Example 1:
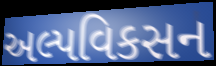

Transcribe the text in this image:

અલ્પવિકસન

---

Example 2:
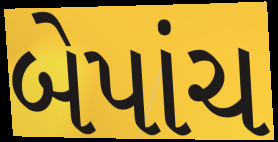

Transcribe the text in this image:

બેપાંચ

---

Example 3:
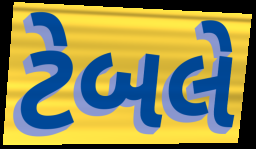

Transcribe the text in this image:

ટેબલે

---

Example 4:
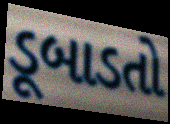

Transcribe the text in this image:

ડૂબાડતો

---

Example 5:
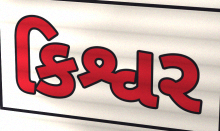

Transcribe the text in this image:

કિશ્વર